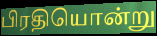
பிரதியொன்று